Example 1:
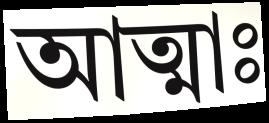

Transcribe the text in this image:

আত্মাঃ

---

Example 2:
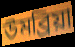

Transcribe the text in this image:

উমব্রিয়া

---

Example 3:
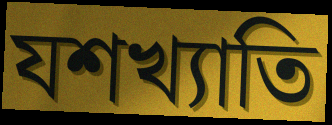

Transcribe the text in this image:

যশখ্যাতি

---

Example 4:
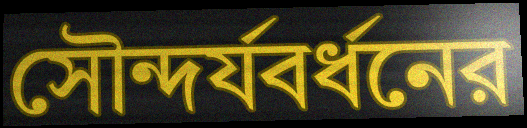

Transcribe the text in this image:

সৌন্দর্যবর্ধনের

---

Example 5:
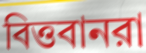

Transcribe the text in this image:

বিত্তবানরা